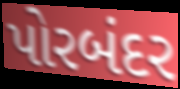
પોરબંદર